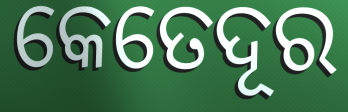
କେତେଦୂର